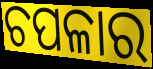
ଚପଳାର